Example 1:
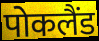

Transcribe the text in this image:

पोकलैंड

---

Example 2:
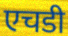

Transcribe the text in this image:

एचडी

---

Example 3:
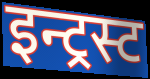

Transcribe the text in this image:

इन्ट्रस्ट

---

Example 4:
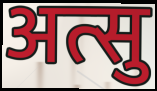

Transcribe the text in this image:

अत्सु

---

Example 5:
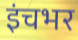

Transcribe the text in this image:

इंचभर